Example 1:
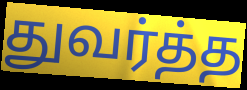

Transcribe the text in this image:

துவர்த்த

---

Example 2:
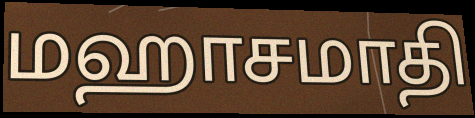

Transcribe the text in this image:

மஹாசமாதி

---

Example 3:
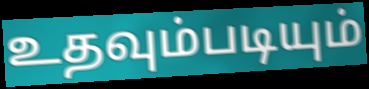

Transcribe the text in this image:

உதவும்படியும்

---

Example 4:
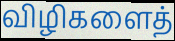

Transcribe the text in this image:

விழிகளைத்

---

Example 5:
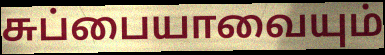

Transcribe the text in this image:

சுப்பையாவையும்